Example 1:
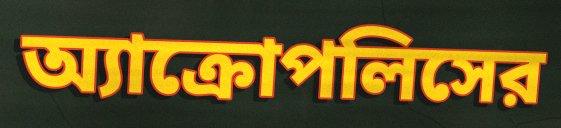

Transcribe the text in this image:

অ্যাক্রোপলিসের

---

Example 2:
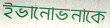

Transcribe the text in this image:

ইভানোভনাকে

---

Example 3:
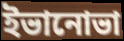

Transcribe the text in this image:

ইভানোভা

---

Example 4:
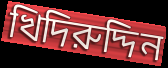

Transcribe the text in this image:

খিদিরুদ্দিন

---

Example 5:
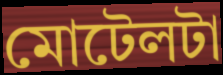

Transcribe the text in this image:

মোটেলটা